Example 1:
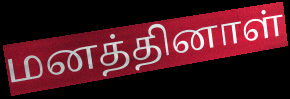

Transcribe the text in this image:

மனத்தினாள்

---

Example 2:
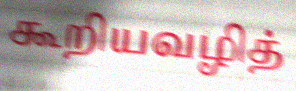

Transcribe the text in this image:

கூறியவழித்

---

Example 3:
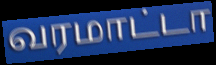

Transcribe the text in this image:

வரமாட்டா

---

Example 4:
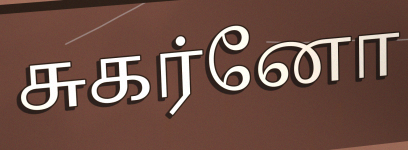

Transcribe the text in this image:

சுகர்னோ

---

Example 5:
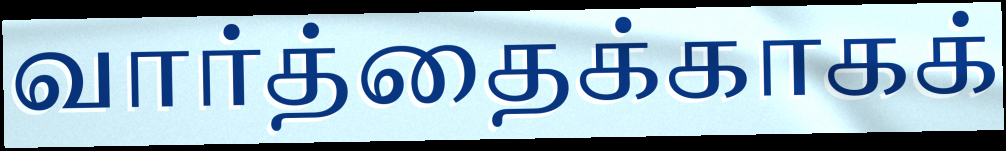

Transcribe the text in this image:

வார்த்தைக்காகக்